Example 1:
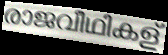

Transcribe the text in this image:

രാജവീഥികള്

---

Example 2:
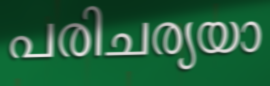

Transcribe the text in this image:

പരിചര്യയാ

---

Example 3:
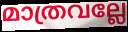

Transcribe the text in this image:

മാത്രവല്ലേ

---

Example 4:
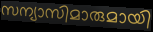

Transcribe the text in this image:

സന്യാസിമാരുമായി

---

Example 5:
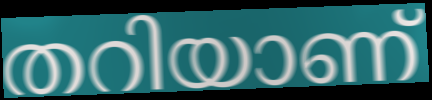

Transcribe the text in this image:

തറിയാണ്